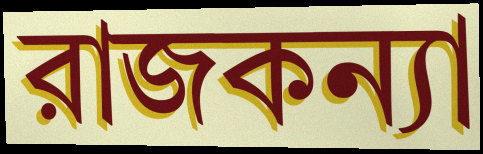
রাজকন্যা